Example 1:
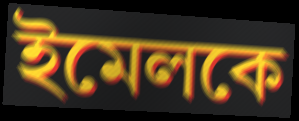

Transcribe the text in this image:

ইমেলকে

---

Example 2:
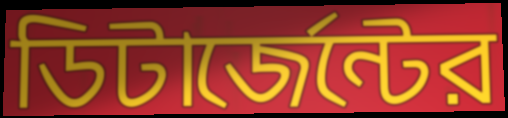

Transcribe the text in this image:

ডিটার্জেন্টের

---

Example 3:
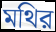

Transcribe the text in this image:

মথির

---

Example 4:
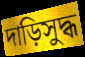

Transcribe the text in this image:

দাড়িসুদ্ধ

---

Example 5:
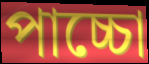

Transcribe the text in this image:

পাচ্চো